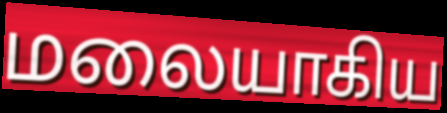
மலையாகிய